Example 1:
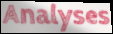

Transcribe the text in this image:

Analyses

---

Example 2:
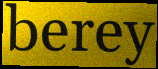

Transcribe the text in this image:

berey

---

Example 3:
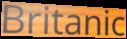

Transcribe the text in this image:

Britanic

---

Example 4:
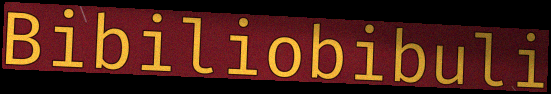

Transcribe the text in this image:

Bibiliobibuli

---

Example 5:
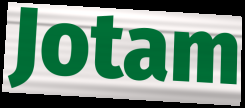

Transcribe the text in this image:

Jotam